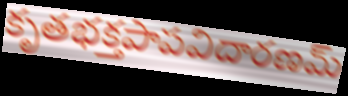
కృతభక్తపాపవిదారణమ్